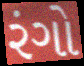
રંગો